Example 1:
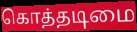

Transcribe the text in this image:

கொத்தடிமை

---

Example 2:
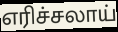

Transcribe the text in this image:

எரிச்சலாய்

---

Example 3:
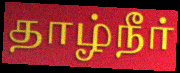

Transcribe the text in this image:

தாழ்நீர்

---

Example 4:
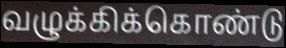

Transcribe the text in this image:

வழுக்கிக்கொண்டு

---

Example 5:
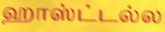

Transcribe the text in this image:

ஹாஸ்ட்டல்ல